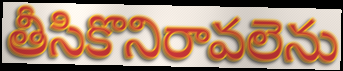
తీసికొనిరావలెను